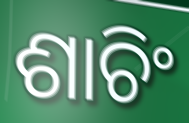
ଶାଚିଂ